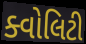
ક્વોલિટી